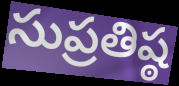
సుప్రతిష్ఠ